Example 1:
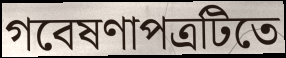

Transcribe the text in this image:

গবেষণাপত্রটিতে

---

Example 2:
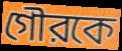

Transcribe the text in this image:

গৌরকে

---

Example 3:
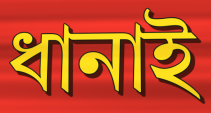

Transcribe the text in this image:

ধানাই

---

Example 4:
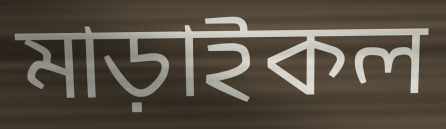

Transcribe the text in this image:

মাড়াইকল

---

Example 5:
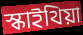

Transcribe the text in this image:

স্কাইথিয়া